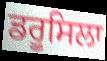
ਡਰੂਸਿਲਾ